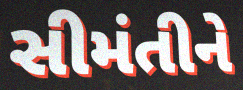
સીમંતીને